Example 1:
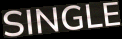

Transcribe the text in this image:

SINGLE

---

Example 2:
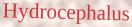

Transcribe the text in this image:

Hydrocephalus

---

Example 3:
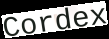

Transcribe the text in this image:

Cordex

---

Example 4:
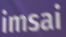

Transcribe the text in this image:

imsai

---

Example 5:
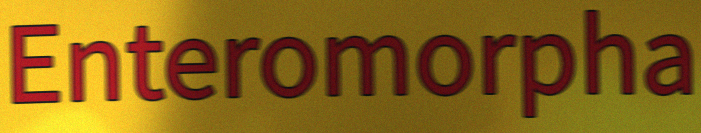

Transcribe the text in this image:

Enteromorpha